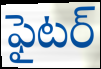
ఫైటర్